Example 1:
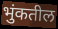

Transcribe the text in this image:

भुंकतील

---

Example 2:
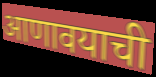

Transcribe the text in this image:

आणावयाची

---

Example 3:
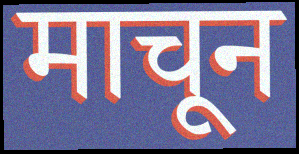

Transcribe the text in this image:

माचून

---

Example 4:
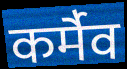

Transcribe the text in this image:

कर्मैव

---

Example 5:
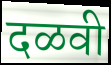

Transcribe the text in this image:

दळवी